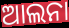
ଆଲନା